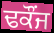
ਢਕੌਂਜ